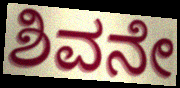
ಶಿವನೇ